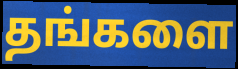
தங்களை